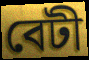
বেটী